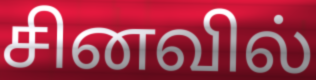
சினவில்